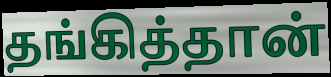
தங்கித்தான்